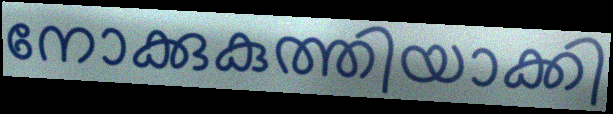
നോക്കുകുത്തിയാക്കി